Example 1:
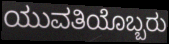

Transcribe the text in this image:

ಯುವತಿಯೊಬ್ಬರು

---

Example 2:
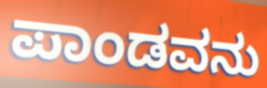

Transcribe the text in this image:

ಪಾಂಡವನು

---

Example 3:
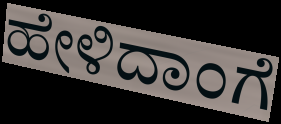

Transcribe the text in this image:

ಹೇಳಿದಾಂಗೆ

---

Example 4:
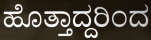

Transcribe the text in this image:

ಹೊತ್ತಾದ್ದರಿಂದ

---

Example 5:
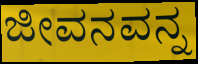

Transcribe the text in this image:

ಜೀವನವನ್ನ